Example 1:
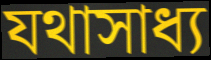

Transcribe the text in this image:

যথাসাধ্য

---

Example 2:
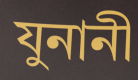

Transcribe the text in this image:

যুনানী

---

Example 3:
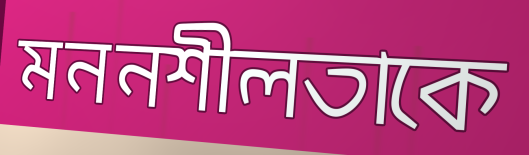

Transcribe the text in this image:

মননশীলতাকে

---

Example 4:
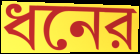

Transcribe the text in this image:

ধনের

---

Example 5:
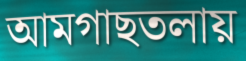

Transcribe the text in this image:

আমগাছতলায়